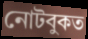
নোটবুকত